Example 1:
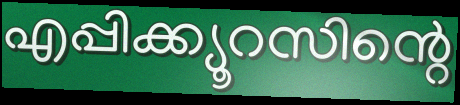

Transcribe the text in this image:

എപ്പിക്ക്യൂറസിന്റെ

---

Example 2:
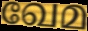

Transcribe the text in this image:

ഖേമ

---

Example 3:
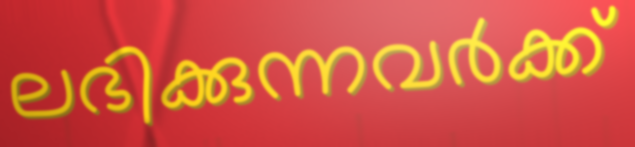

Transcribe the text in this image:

ലഭിക്കുന്നവർക്ക്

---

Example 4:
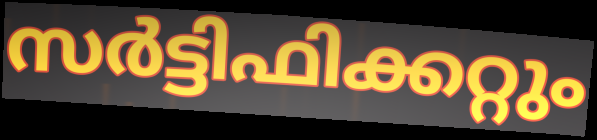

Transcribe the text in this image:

സർട്ടിഫിക്കറ്റും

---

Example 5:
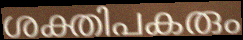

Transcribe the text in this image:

ശക്തിപകരും